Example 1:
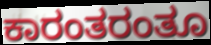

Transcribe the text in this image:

ಕಾರಂತರಂತೂ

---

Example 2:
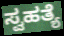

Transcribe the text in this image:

ಸ್ವಹತ್ಯೆ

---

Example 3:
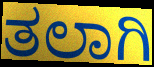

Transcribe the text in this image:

ತಲಾಗಿ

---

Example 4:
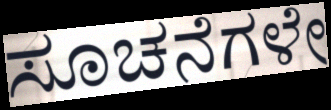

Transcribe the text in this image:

ಸೂಚನೆಗಳೇ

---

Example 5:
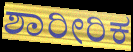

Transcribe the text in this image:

ಶಾರೀರಿಕ